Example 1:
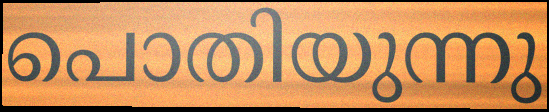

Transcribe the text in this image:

പൊതിയുന്നു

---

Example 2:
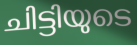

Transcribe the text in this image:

ചിട്ടിയുടെ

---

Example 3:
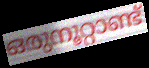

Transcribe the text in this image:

ഒരുനൂറ്റാണ്ട്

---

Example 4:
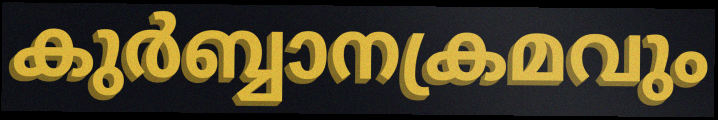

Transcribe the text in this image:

കുർബ്ബാനക്രമവും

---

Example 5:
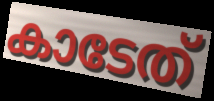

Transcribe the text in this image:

കാടേത്